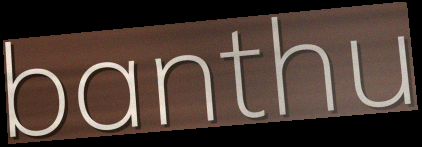
banthu